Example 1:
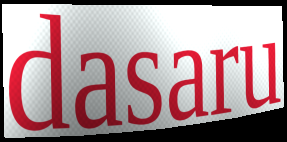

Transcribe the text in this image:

dasaru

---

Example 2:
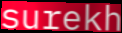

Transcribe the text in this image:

surekh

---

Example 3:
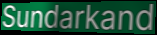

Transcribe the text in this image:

Sundarkand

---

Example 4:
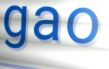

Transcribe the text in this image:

gao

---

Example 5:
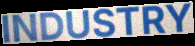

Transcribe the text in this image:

INDUSTRY